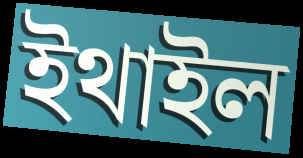
ইথাইল